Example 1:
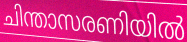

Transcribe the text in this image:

ചിന്താസരണിയിൽ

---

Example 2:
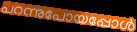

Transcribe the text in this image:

പറന്നുപോയപ്പോൾ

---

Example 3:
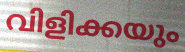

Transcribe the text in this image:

വിളിക്കയും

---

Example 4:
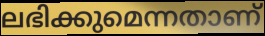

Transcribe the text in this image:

ലഭിക്കുമെന്നതാണ്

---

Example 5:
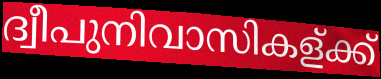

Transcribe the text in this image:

ദ്വീപുനിവാസികള്ക്ക്